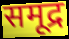
समूद्र